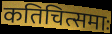
कतिचित्समाः